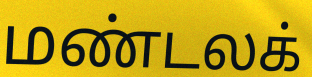
மண்டலக்